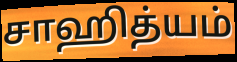
சாஹித்யம்